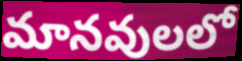
మానవులలో